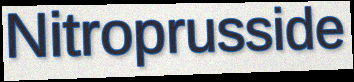
Nitroprusside